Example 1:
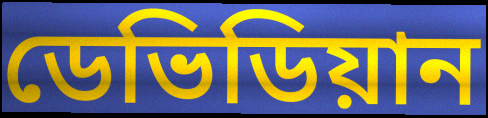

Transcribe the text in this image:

ডেভিডিয়ান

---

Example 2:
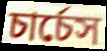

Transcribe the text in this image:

চার্চেস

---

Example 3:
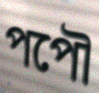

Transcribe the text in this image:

পপৌ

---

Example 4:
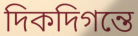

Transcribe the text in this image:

দিকদিগন্তে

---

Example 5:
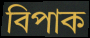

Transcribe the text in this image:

বিপাক